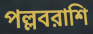
পল্লবরাশি